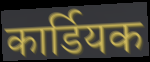
कार्डियक